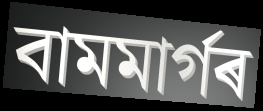
বামমাৰ্গৰ